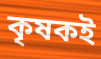
কৃষকই